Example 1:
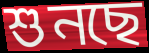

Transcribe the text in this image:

শুনছে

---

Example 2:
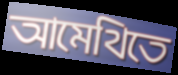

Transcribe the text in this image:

আমেথিতে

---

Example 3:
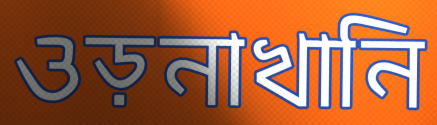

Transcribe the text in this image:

ওড়্নাখানি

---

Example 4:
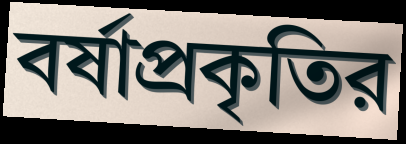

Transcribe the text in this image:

বর্ষাপ্রকৃতির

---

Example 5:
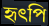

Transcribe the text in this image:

হৃৎপি